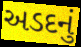
અડદનું